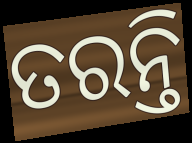
ତରନ୍ତି